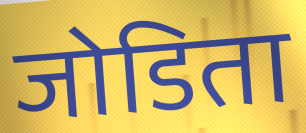
जोडिता